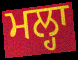
ਮਲ੍ਹਾ